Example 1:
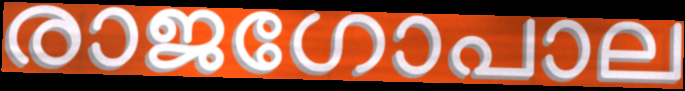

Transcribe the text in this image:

രാജഗോപാല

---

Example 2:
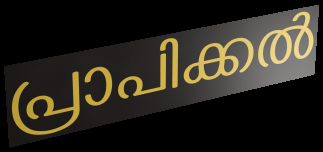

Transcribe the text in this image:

പ്രാപിക്കൽ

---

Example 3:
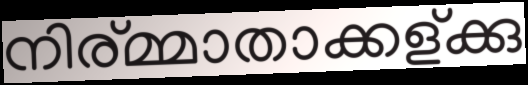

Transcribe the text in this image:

നിര്മ്മാതാക്കള്ക്കു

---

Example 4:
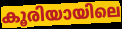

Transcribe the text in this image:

കൂരിയായിലെ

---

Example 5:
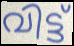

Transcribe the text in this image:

വിട്ട്